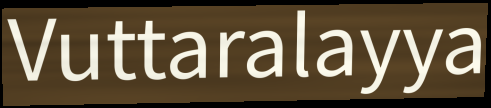
Vuttaralayya